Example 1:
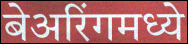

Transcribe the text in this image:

बेअरिंगमध्ये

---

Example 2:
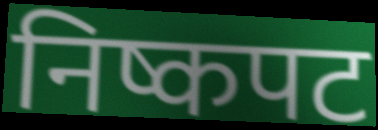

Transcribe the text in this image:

निष्कपट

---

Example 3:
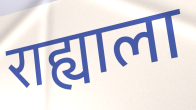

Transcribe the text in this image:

राह्याला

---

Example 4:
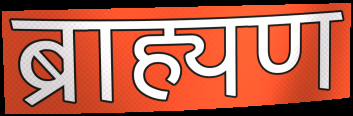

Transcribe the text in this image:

ब्राह्यण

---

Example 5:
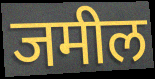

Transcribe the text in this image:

जमील